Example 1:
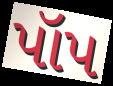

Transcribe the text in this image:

પૉપ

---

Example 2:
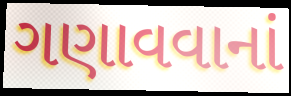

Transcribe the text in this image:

ગણાવવાનાં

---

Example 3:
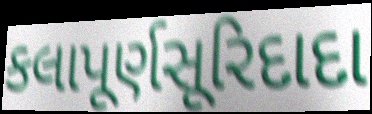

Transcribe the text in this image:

કલાપૂર્ણસૂરિદાદા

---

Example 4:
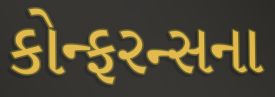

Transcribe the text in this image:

કોન્ફરન્સના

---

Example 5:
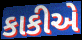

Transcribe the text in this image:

કાકીએ